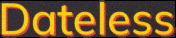
Dateless